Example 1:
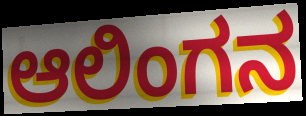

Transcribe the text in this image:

ಆಲಿಂಗನ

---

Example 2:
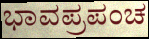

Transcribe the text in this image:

ಭಾವಪ್ರಪಂಚ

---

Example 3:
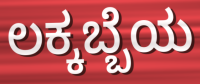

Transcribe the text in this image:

ಲಕ್ಕಬ್ಬೆಯ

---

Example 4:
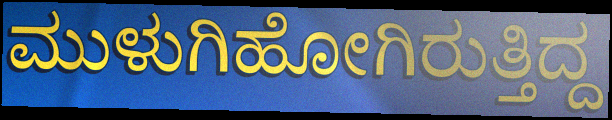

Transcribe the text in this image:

ಮುಳುಗಿಹೋಗಿರುತ್ತಿದ್ದ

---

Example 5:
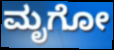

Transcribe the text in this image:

ಮೃಗೋ